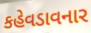
કહેવડાવનાર